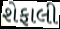
શેફાલી